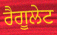
ਰੈਗੂਲੇਟ